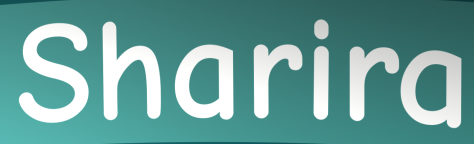
Sharira